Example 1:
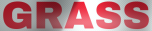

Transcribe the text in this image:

GRASS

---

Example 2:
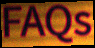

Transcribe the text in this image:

FAQs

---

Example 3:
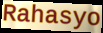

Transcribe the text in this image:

Rahasyo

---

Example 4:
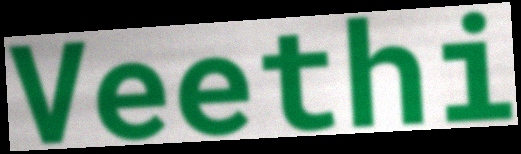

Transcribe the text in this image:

Veethi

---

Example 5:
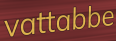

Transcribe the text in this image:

vattabbe